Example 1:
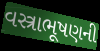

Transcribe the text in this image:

વસ્ત્રાભૂષણની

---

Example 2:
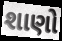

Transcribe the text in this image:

શાણો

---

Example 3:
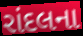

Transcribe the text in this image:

રાંદલના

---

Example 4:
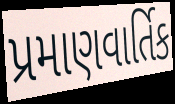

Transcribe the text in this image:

પ્રમાણવાર્તિક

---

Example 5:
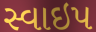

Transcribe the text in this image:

સ્વાઇપ